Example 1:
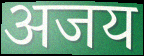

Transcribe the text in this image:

अजय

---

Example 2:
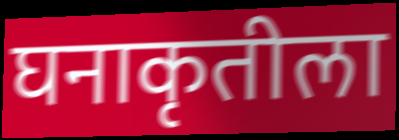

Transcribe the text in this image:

घनाकृतीला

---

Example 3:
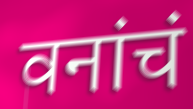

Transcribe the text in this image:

वनांचं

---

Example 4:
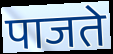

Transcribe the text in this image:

पाजते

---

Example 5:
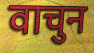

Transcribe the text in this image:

वाचुन